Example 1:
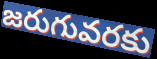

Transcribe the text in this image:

జరుగువరకు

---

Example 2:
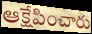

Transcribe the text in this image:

ఆక్షేపించారు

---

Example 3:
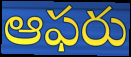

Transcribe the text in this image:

ఆఫరు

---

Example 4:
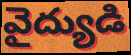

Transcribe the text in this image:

వైద్యుడి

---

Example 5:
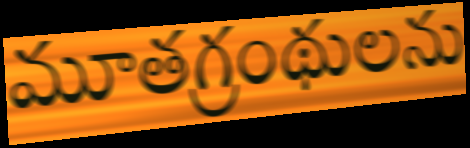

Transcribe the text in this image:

మూతగ్రంథులను